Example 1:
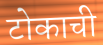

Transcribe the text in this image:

टोकाची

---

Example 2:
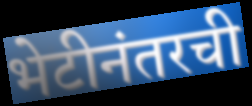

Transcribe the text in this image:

भेटीनंतरची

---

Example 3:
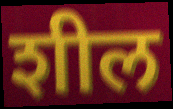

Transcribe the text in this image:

शील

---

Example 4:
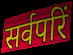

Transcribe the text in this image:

सर्वपरिं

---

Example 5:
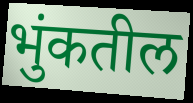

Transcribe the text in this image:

भुंकतील